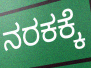
ನರಕಕ್ಕೆ